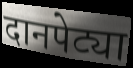
दानपेट्या